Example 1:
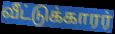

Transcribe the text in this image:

வீட்டுக்காரர்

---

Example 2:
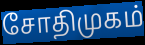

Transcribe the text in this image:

சோதிமுகம்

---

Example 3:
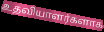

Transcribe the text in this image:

உதவியாளர்களாக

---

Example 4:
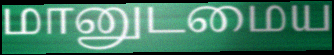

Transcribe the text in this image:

மானுடமைய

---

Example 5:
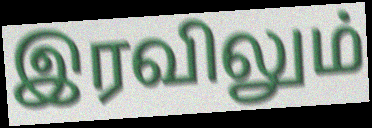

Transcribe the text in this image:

இரவிலும்